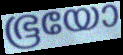
ഭൂയോ